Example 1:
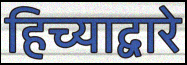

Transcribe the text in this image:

हिच्याद्वारे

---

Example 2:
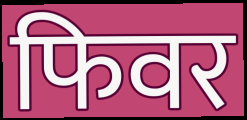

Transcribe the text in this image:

फिवर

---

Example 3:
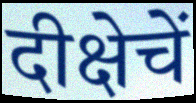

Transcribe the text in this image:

दीक्षेचें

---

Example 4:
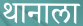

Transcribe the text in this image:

थानाला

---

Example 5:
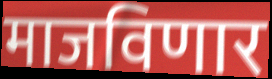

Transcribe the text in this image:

माजविणार